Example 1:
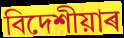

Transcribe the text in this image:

বিদেশীয়াৰ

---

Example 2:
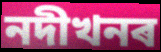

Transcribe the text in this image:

নদীখনৰ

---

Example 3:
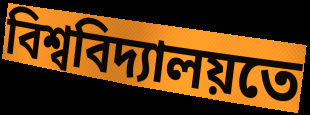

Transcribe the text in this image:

বিশ্ববিদ্যালয়তে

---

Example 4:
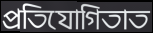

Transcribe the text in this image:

প্ৰতিযোগিতাত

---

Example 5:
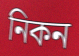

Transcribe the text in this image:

নিকন